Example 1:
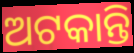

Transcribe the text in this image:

ଅଟକାନ୍ତି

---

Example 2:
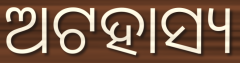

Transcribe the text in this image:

ଅଟହାସ୍ୟ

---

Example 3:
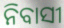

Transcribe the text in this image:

ନିବାସୀ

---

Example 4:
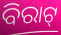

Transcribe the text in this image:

ବିରାଟ୍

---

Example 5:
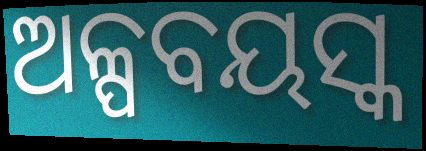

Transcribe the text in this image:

ଅଳ୍ପବୟସ୍କ